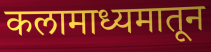
कलामाध्यमातून